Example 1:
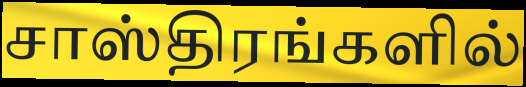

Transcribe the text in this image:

சாஸ்திரங்களில்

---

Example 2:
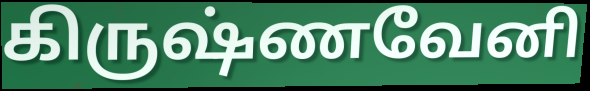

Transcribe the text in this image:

கிருஷ்ணவேனி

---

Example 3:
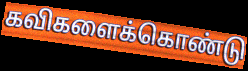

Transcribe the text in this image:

கவிகளைக்கொண்டு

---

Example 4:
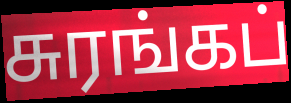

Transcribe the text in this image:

சுரங்கப்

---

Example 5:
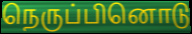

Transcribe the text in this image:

நெருப்பினொடு